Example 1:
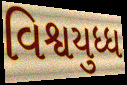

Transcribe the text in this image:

વિશ્વયુધ્ધ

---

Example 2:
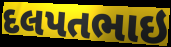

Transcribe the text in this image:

દલપતભાઇ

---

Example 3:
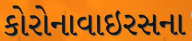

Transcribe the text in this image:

કોરોનાવાઇરસના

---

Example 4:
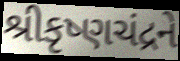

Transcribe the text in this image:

શ્રીકૃષ્ણચંદ્રને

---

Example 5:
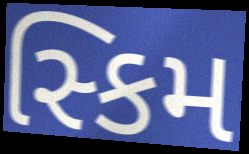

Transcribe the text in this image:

સ્કિમ